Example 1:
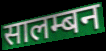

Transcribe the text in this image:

सालम्बन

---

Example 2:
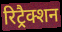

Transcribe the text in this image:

रिट्रैक्शन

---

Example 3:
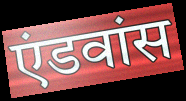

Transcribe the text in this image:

एंडवांस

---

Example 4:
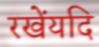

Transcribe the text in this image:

रखेंयदि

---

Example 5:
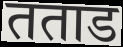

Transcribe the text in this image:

तताड